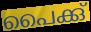
പൈക്കു്